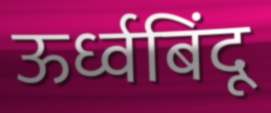
ऊर्ध्वबिंदू